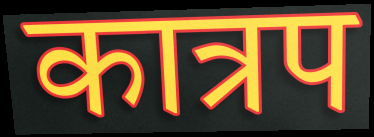
कात्रप